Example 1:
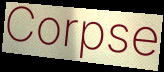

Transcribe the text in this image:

Corpse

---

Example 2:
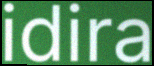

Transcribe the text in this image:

idira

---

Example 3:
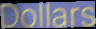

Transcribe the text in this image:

Dollars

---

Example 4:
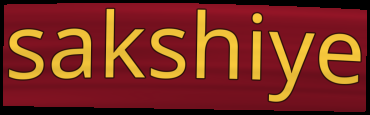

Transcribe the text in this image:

sakshiye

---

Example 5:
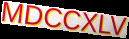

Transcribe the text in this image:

MDCCXLV